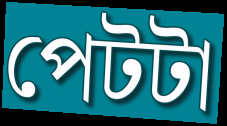
পেটটা